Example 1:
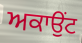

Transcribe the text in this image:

ਅਕਾਉਂਟ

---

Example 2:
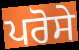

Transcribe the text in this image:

ਪਰੋਸੇ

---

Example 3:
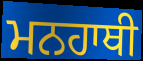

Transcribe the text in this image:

ਮਨਹਾਥੀ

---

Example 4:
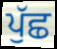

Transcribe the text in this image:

ਪੁੱਛ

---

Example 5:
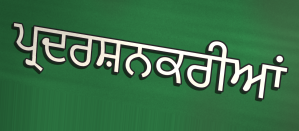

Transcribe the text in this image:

ਪ੍ਰਦਰਸ਼ਨਕਰੀਆਂ